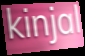
kinjal